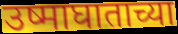
उष्माघाताच्या